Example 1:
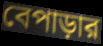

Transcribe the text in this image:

বেপাড়ার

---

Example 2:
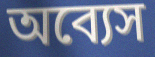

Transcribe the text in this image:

অব্যেস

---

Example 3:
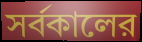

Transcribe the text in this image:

সর্বকালের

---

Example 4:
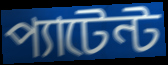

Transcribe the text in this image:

প্যাটেন্ট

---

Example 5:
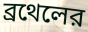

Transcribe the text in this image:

ব্রথেলের